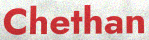
Chethan